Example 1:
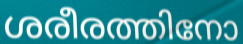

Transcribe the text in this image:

ശരീരത്തിനോ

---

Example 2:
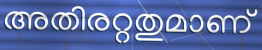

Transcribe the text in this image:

അതിരറ്റതുമാണ്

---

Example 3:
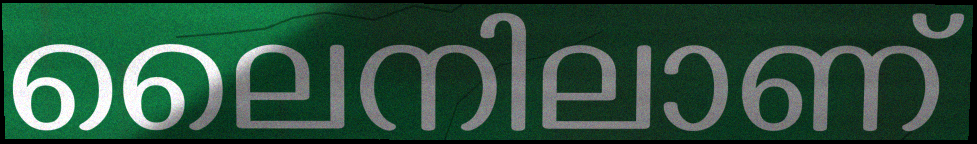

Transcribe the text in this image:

ലൈനിലാണ്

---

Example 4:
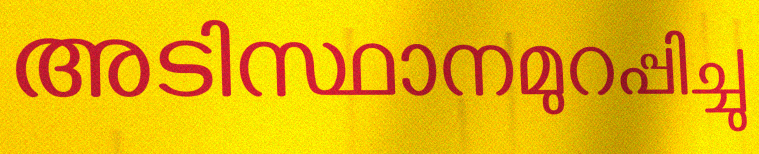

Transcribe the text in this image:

അടിസ്ഥാനമുറപ്പിച്ചു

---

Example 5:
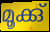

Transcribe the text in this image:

മൂക്കു്